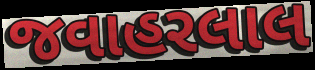
જવાહરલાલ